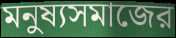
মনুষ্যসমাজের